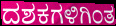
ದಶಕಗಳಿಗಿಂತ